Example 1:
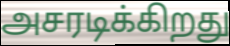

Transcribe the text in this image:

அசரடிக்கிறது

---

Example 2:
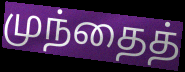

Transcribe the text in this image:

முந்தைத்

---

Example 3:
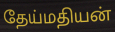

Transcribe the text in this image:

தேய்மதியன்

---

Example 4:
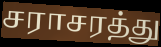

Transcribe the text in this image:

சராசரத்து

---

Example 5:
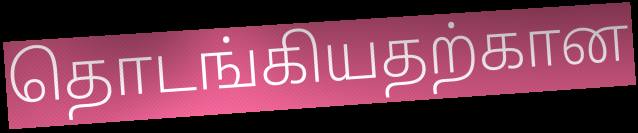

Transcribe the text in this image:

தொடங்கியதற்கான